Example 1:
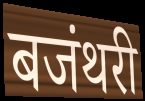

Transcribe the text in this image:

बजंथरी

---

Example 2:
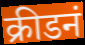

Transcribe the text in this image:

क्रीडनं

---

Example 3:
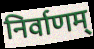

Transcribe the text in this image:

निर्वाणम्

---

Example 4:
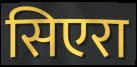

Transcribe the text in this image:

सिएरा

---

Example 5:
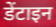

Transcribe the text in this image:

डेंटाइन